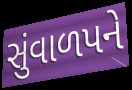
સુંવાળપને